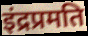
इंद्रप्रमति